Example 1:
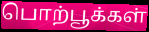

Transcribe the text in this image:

பொற்பூக்கள்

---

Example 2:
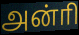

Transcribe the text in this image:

அன்ரி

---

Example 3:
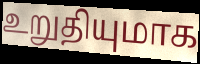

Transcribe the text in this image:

உறுதியுமாக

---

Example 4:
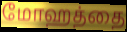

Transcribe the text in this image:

மோஹத்தை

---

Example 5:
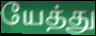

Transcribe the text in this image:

யேத்து